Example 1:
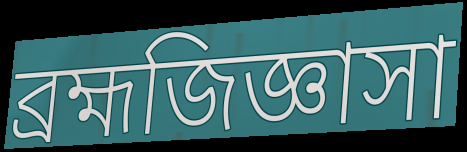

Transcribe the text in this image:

ব্রহ্মজিজ্ঞাসা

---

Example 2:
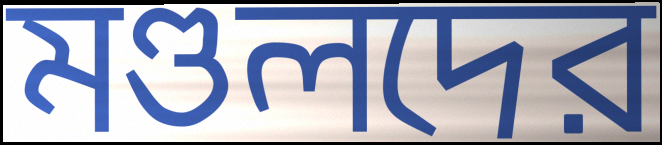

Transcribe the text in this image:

মণ্ডলদের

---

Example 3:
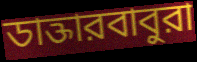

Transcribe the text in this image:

ডাক্তারবাবুরা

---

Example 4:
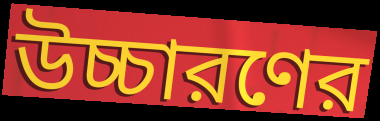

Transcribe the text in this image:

উচ্চারণের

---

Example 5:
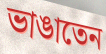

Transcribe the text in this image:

ভাঙাতেন